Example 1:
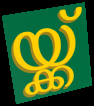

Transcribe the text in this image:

യ്ക്ക്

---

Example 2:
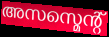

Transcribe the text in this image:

അസസ്മെന്റ്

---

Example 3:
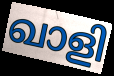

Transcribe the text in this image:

ഖാളി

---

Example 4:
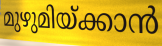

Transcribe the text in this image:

മുഴുമിയ്ക്കാൻ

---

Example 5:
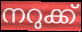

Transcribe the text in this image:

നറുക്ക്